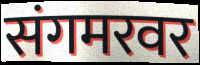
संगमरवर